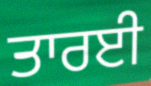
ਤਾਰਈ